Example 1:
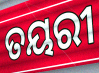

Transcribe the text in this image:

ତୟରୀ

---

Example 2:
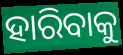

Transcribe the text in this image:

ହାରିବାକୁ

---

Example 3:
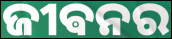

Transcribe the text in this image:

ଜୀଵନର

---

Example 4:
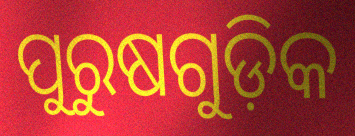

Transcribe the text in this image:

ପୁରୁଷଗୁଡ଼ିକ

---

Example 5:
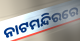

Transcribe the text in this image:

ନାଟମନ୍ଦିରରେ